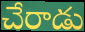
చేరాడు